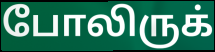
போலிருக்